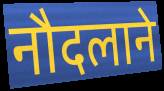
नौदलाने